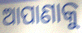
ଆପାଣାକୁ